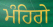
ਮੰਹਿਗੇ